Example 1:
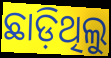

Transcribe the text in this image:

ଛାଡ଼ିଥିଲୁ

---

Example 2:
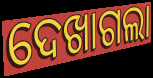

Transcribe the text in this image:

ଦେଖାଗଲା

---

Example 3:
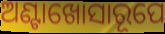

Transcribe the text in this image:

ଅଣ୍ଟାଖୋସାରୂପେ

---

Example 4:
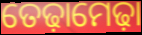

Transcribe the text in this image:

ତେଢ଼ାମେଢ଼ା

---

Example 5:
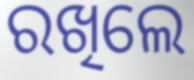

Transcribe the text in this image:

ରଖିଲେ